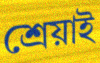
শ্ৰেয়াই